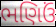
ભણિઉં